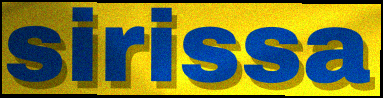
sirissa